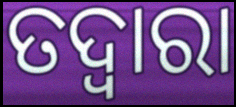
ତଦ୍ୱାରା